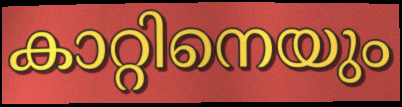
കാറ്റിനെയും